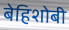
बेहिशोबी